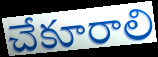
చేకూరాలి